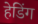
हेडिंग